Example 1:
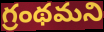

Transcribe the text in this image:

గ్రంథమని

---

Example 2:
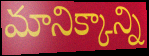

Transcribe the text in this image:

మానిక్కాన్ని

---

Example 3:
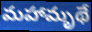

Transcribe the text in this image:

మహామృథే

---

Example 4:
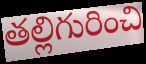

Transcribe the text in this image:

తల్లిగురించి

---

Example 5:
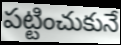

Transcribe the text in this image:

పట్టించుకునే